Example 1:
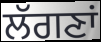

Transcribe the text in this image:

ਲੱਗਣਾਂ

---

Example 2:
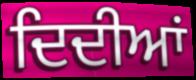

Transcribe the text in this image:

ਦਿਦੀਆਂ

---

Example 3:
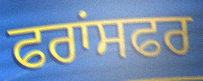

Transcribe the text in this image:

ਫਰਾਂਸਫਰ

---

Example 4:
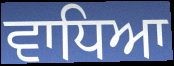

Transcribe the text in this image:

ਵਾਧਿਆ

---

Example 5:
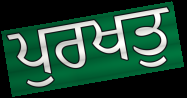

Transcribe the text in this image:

ਪੁਰਖਤੁ